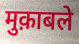
मुक़ाबले